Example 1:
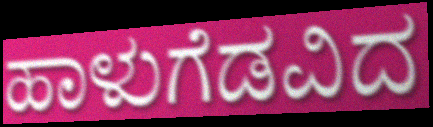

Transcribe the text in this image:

ಹಾಳುಗೆಡವಿದ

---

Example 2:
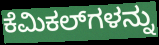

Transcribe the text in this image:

ಕೆಮಿಕಲ್‌ಗಳನ್ನು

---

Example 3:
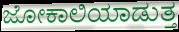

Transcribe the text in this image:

ಜೋಕಾಲಿಯಾಡುತ್ತ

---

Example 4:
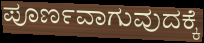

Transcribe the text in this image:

ಪೂರ್ಣವಾಗುವುದಕ್ಕೆ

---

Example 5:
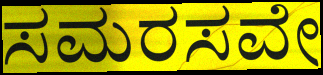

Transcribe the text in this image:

ಸಮರಸವೇ